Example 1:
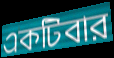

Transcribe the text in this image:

একটিবার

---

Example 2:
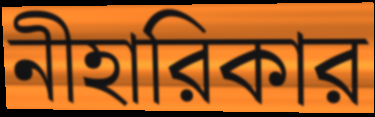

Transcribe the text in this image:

নীহারিকার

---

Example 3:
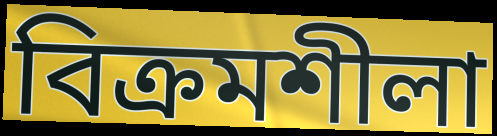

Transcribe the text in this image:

বিক্রমশীলা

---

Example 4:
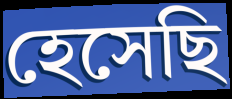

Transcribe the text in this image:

হেসেছি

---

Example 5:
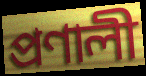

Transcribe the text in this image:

প্রণালী